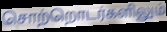
சொற்றொடர்களிலும்